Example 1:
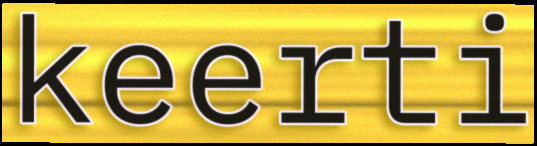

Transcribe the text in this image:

keerti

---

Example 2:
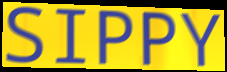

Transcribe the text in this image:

SIPPY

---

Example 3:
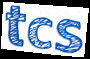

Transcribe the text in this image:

tcs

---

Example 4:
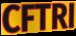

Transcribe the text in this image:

CFTRI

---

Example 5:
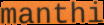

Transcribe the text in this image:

manthi